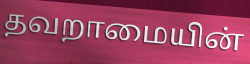
தவறாமையின்